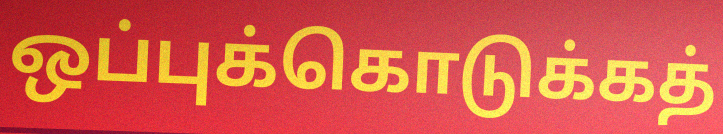
ஒப்புக்கொடுக்கத்